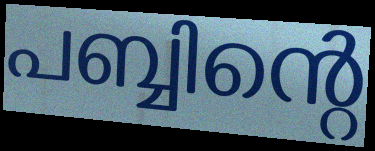
പബ്ബിന്റെ